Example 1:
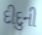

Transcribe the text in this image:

દીદુની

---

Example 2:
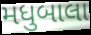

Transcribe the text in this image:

મધુબાલા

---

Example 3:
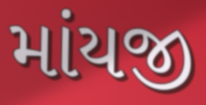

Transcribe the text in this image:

માંયજી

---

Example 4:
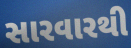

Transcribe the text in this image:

સારવારથી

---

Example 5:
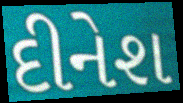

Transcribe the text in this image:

દીનેશ